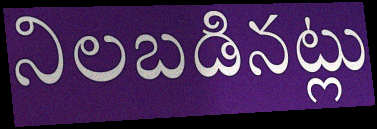
నిలబడినట్లు